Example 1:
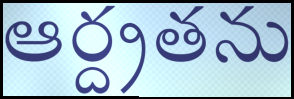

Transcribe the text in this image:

ఆర్ద్రతను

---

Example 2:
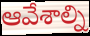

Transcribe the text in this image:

ఆవేశాల్ని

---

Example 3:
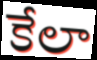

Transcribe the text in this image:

కేలా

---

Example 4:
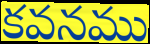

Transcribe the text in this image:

కవనము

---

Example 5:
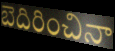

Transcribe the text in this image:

బెదిరించినా